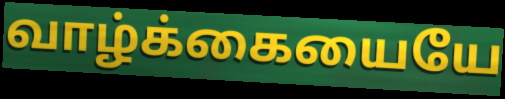
வாழ்க்கையையே